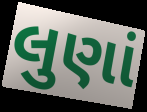
લુણાં